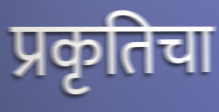
प्रकृतिचा